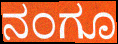
ನಂಗೂ